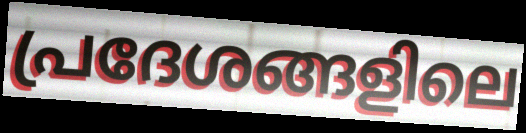
പ്രദേശങ്ങളിലെ